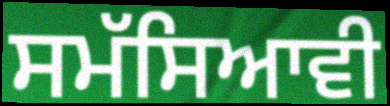
ਸਮੱਸਿਆਵੀ